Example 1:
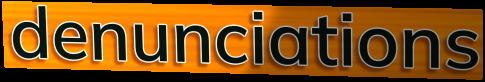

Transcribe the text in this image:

denunciations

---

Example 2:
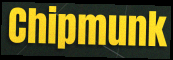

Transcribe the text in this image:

Chipmunk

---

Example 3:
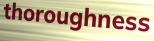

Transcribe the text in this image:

thoroughness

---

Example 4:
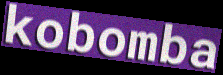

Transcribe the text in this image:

kobomba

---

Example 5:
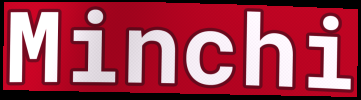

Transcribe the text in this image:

Minchi